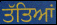
ਤੱਤਿਆਂ